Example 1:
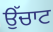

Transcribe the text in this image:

ਉੱਚਾਟ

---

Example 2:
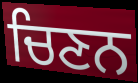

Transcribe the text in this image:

ਚਿਣਨ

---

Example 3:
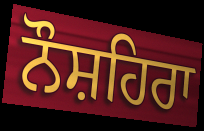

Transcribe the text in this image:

ਨੌਸ਼ਹਿਰਾ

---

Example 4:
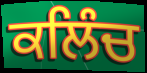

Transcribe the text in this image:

ਕਲਿੰਚ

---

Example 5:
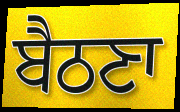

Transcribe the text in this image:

ਬੈਠਣਾ